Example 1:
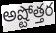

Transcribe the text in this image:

అష్టోత్తర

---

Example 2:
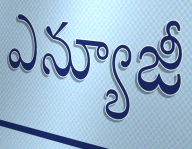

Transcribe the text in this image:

ఎన్యూజీ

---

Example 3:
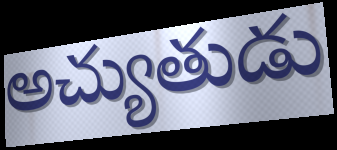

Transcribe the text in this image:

అచ్యుతుడు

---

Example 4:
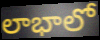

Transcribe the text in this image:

లాభాలో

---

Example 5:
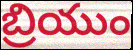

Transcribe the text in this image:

బ్రియుం